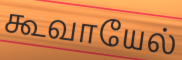
கூவாயேல்